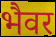
भैवर